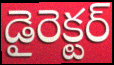
డైరెక్టర్